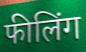
फीलिंग